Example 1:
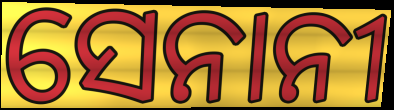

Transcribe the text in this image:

ସେନାନୀ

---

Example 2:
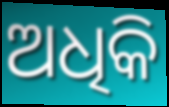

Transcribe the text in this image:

ଅଧିକି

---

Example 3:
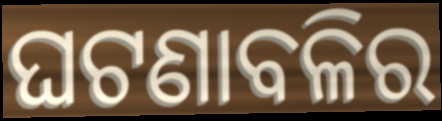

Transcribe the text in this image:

ଘଟଣାବଳିର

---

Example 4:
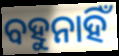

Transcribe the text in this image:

ବହୁନାହିଁ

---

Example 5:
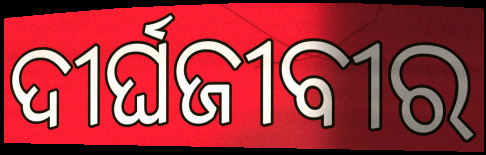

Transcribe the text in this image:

ଦୀର୍ଘଜୀବୀର